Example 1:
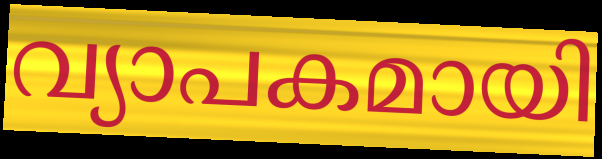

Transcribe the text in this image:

വ്യാപകമായി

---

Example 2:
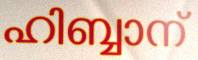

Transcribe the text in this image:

ഹിബ്ബാന്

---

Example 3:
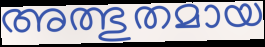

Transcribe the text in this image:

അത്ഭുതമായ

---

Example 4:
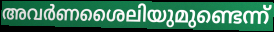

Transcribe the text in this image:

അവർണശൈലിയുമുണ്ടെന്ന്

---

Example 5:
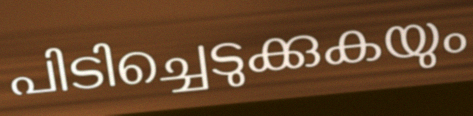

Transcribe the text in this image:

പിടിച്ചെടുക്കുകയും